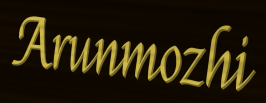
Arunmozhi